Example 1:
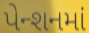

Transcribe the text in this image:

પેન્શનમાં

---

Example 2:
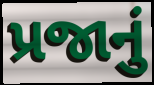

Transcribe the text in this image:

પ્રજાનું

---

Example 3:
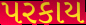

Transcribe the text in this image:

પરકાય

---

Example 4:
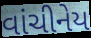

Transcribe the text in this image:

વાંચીનેય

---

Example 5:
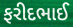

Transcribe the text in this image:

ફરીદભાઈ